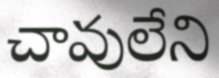
చావులేని